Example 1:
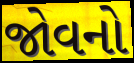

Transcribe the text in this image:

જોવનો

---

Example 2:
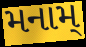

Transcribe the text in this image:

મનામ્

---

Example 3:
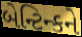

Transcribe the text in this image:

બેન્ટિન્કને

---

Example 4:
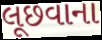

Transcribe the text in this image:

લૂછવાના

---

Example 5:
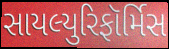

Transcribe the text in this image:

સાયલ્યુરિફૉર્મિસ